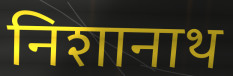
निशानाथ